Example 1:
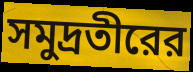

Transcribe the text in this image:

সমুদ্রতীরের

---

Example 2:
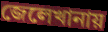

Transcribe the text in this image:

জেলেখানায়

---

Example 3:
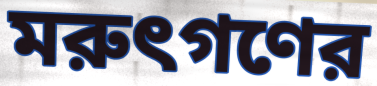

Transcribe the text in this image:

মরুৎগণের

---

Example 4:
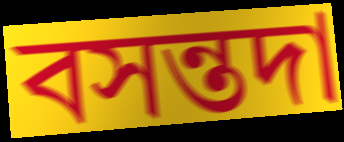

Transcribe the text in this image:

বসন্তদা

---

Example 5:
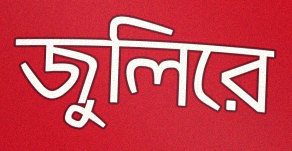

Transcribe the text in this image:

জুলিরে